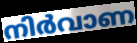
നിർവാണ